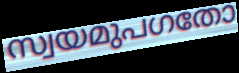
സ്വയമുപഗതോ